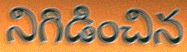
నిగిడించిన